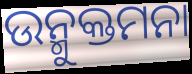
ଉନ୍ମୁକ୍ତମନା